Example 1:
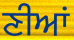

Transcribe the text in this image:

ਣੀਆਂ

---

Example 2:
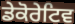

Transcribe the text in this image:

ਡੇਕੋਰੇਟਿਵ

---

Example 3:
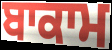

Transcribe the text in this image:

ਬਾਕਾਮ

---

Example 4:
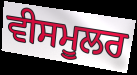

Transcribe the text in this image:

ਵੀਸਮੂਲਰ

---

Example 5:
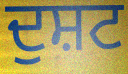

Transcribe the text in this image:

ਦੁਸ਼ਟ